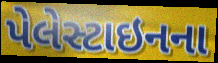
પેલેસ્ટાઇનના